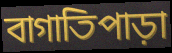
বাগাতিপাড়া